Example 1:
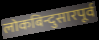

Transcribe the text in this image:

लोकबिन्दुसारपूर्व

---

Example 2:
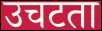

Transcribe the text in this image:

उचटता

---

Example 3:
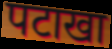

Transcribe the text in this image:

पटाखा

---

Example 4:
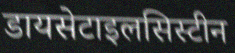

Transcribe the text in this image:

डायसेटाइलसिस्टीन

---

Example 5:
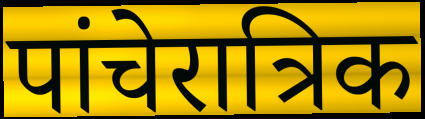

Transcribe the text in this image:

पांचेरात्रिक